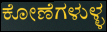
ಕೋಣೆಗಳುಳ್ಳ